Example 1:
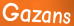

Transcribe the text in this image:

Gazans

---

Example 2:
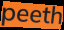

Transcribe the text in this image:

peeth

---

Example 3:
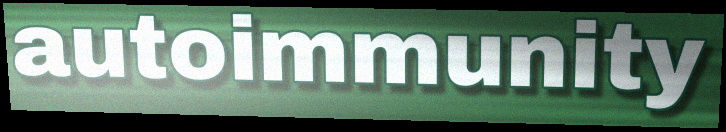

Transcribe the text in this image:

autoimmunity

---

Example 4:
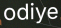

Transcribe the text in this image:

odiye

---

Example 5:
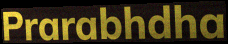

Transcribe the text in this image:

Prarabhdha